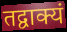
तद्वाक्यं